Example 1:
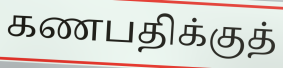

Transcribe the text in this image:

கணபதிக்குத்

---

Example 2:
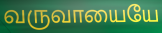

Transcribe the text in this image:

வருவாயையே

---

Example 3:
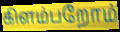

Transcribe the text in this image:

கிளம்பறோம்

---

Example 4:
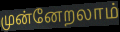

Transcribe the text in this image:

முன்னேறலாம்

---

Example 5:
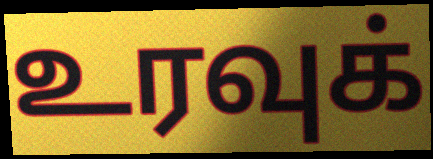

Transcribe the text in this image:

உரவுக்